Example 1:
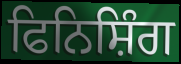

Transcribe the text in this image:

ਫਿਨਿਸ਼ਿੰਗ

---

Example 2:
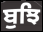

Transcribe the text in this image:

ਬੁਝਿ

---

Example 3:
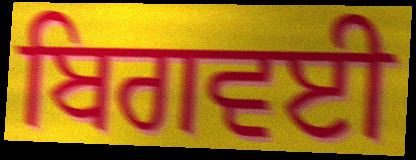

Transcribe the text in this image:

ਬਿਗਵਈ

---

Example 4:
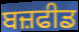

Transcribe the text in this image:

ਬਜ਼ਫੀਡ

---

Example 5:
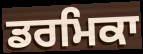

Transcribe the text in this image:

ਡਰਮਿਕਾ